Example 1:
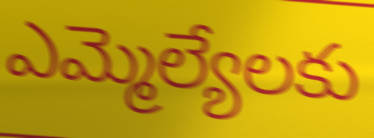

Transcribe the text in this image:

ఎమ్మెల్యేలకు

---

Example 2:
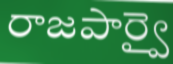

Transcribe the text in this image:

రాజపార్వై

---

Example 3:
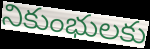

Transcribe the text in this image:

నికుంభులకు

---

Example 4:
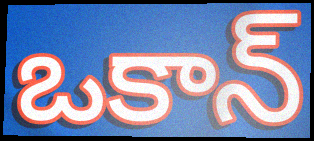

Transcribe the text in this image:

ఒకాన్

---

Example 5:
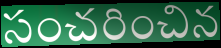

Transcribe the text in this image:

సంచరించిన